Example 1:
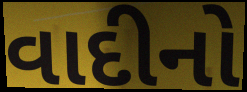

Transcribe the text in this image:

વાદીનો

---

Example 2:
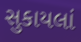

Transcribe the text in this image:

સુકાયલાં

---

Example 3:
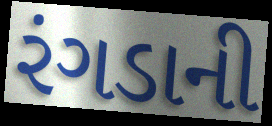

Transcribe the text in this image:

રંગડાની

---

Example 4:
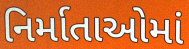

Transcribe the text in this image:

નિર્માતાઓમાં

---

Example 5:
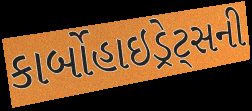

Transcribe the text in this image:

કાર્બોહાઇડ્રેટ્સની